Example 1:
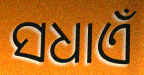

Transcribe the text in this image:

ସଧାଏଁ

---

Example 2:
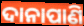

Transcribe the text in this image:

ଦାନାପାଣି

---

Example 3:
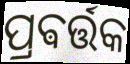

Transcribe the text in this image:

ପ୍ରଵର୍ତ୍ତକ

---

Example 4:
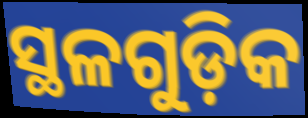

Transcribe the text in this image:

ସ୍ଥଳଗୁଡ଼ିକ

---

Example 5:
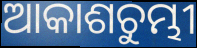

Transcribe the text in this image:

ଆକାଶଚୁମ୍ଭୀ